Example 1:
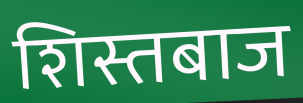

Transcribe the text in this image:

शिस्तबाज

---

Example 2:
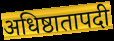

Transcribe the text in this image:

अधिष्ठातापदी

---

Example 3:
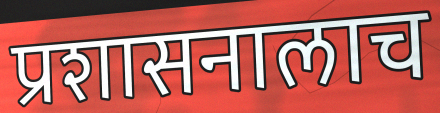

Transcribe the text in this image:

प्रशासनालाच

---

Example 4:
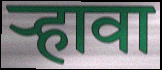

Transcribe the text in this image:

र्‍हावा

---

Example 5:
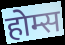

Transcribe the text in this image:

होम्स